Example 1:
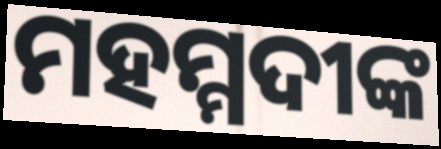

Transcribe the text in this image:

ମହମ୍ମଦୀଙ୍କ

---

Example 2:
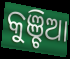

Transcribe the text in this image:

କୁଞ୍ଚିଆ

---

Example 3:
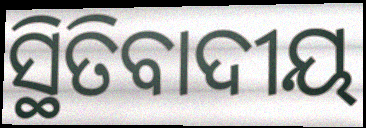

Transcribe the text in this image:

ସ୍ଥିତିବାଦୀୟ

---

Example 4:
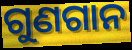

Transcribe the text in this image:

ଗୁଣଗାନ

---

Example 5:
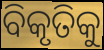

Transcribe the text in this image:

ବିକୃତିକୁ